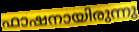
ഫാഷനായിരുന്നു